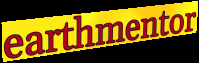
earthmentor